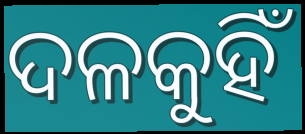
ଦଳକୁହିଁ